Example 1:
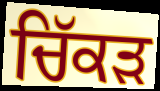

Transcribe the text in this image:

ਚਿੱਕੜ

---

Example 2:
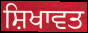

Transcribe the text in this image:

ਸ਼ਿਖਾਵਤ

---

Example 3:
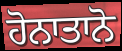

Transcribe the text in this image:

ਹੋਨਾਤਾਨੋ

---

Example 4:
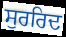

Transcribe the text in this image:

ਸੁਰਰਿਦ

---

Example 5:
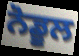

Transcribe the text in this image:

ਨੋਡੂਲ